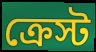
ক্রেস্ট